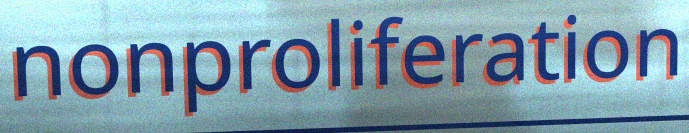
nonproliferation